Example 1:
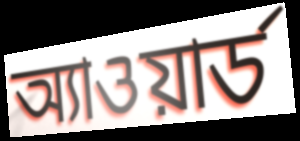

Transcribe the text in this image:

অ্যাওয়ার্ড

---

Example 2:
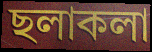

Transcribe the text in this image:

ছলাকলা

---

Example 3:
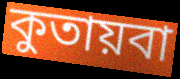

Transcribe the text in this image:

কুতায়বা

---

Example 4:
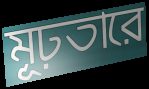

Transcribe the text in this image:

মূঢ়তারে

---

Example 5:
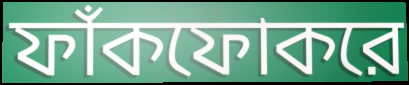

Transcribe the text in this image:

ফাঁকফোকরে